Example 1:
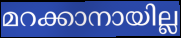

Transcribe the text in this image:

മറക്കാനായില്ല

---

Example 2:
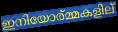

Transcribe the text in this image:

ഇനിയോര്മ്മകളില്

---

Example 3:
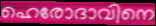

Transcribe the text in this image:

ഹെരോദാവിനെ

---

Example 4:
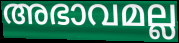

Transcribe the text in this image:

അഭാവമല്ല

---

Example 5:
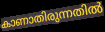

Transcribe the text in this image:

കാണാതിരുന്നതിൽ